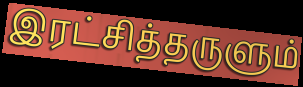
இரட்சித்தருளும்